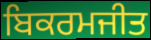
ਬਿਕਰਮਜੀਤ